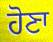
ਹੋਣਾ